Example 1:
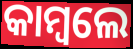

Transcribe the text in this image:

କାମ୍ବଲେ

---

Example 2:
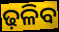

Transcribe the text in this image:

ଢ଼ଳିବ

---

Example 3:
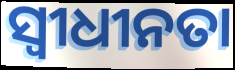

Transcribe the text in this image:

ସ୍ୱୀଧୀନତା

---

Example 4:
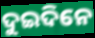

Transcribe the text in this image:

ଦୁଇଦିନେ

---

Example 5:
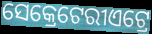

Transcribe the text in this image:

ସେକ୍ରେଟେରୀଏଟ୍ରେ